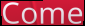
Come